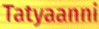
Tatyaanni